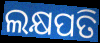
ଲକ୍ଷପତି